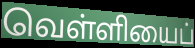
வெள்ளியைப்